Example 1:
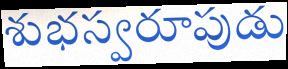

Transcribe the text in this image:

శుభస్వరూపుడు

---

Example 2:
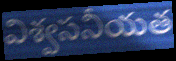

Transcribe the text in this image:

విశ్వసనీయత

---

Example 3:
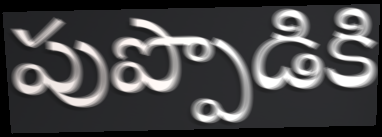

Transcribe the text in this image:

పుప్పొడికి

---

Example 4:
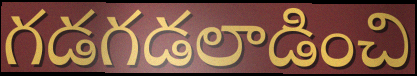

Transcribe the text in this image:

గడగడలాడించి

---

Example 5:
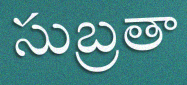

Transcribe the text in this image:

సుబ్రతా